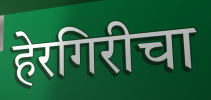
हेरगिरीचा